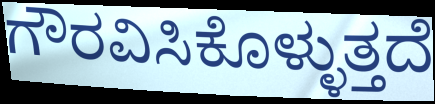
ಗೌರವಿಸಿಕೊಳ್ಳುತ್ತದೆ